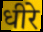
धीरे